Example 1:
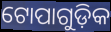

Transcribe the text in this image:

ଟୋପାଗୁଡ଼ିକ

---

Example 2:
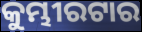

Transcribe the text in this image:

କୁମ୍ଭୀରଟାର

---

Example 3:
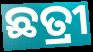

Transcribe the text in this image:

ଛତ୍ରୀ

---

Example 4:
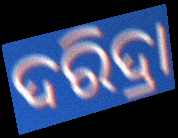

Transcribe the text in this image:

ଦରିଦ୍ରା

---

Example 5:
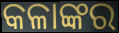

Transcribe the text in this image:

କଳାଙ୍କର